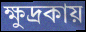
ক্ষুদ্রকায়